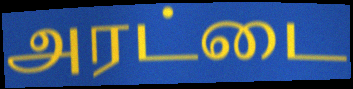
அரட்டை